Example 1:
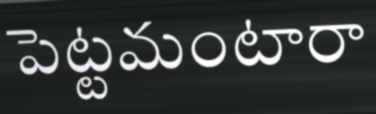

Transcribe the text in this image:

పెట్టమంటారా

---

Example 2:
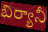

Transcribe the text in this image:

బిర్యానీ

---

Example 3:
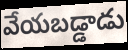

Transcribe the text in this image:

వేయబడ్డాడు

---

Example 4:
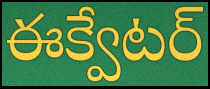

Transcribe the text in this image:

ఈక్వేటర్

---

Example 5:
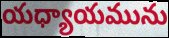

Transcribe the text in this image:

యధ్యాయమును